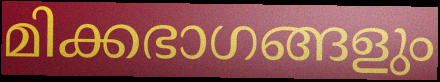
മിക്കഭാഗങ്ങളും